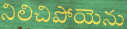
నిలిచిపోయెను